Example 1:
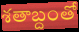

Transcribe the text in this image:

శతాబ్దంతో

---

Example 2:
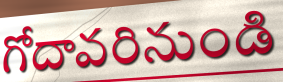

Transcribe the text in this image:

గోదావరినుండి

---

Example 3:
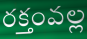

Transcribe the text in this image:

రక్తంవల్ల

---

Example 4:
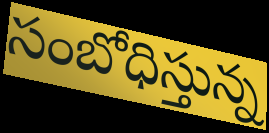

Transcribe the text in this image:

సంబోధిస్తున్న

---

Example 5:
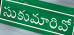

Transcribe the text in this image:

సుకుమారివో